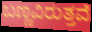
ಬಣ್ಣವಿರುತ್ತವೆ